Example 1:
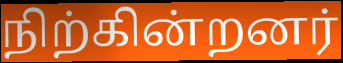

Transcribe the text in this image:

நிற்கின்றனர்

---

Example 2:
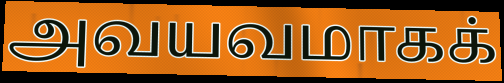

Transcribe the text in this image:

அவயவமாகக்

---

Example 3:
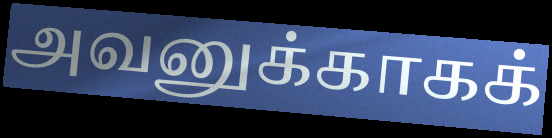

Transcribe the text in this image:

அவனுக்காகக்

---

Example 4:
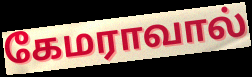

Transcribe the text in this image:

கேமராவால்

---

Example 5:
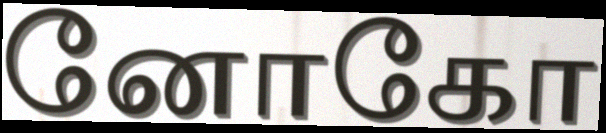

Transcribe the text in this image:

னோகோ